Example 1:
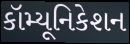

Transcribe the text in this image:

કૉમ્યૂનિકેશન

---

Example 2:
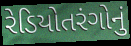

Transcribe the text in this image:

રેડિયોતરંગોનું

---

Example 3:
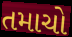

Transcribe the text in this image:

તમાચો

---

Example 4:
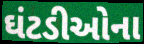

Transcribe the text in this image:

ઘંટડીઓના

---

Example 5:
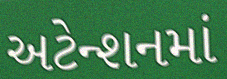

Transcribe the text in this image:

અટેન્શનમાં